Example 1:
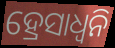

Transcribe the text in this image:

ହ୍ରେସାଧ୍ୱନି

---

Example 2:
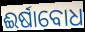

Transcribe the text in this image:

ଈର୍ଷାବୋଧ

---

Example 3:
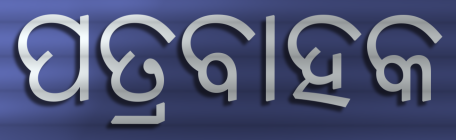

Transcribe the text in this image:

ପତ୍ରବାହକ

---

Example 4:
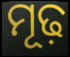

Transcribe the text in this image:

ମୂଢ଼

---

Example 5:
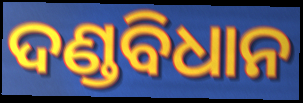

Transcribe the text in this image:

ଦଣ୍ଡବିଧାନ